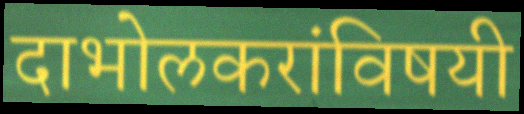
दाभोलकरांविषयी